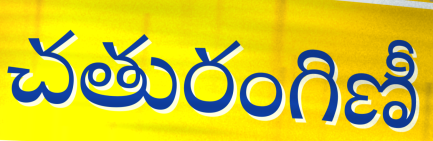
చతురంగిణీ